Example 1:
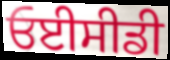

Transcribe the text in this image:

ਓਈਸੀਡੀ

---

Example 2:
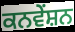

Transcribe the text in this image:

ਕਨਵੇਂਸ਼ਨ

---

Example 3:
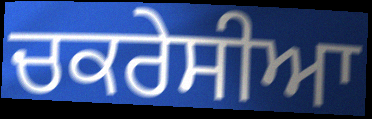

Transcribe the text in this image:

ਚਕਰੇਸੀਆ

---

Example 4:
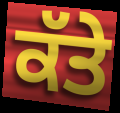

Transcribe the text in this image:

ਕੱਤੇ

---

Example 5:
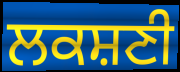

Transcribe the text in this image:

ਲਕਸ਼ਣੀ